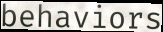
behaviors